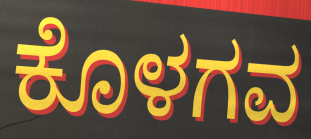
ಕೊಳಗವ